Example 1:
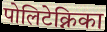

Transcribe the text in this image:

पोलिटेक्निका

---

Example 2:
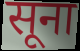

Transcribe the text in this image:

सूना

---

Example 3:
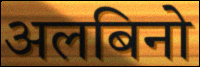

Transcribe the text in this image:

अलबिनो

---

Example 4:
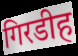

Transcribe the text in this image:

गिरडीह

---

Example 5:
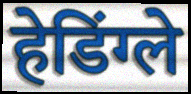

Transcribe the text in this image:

हेडिंग्‍ले